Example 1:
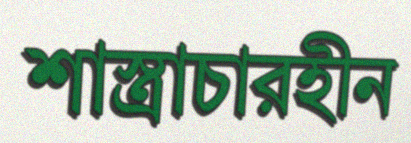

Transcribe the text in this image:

শাস্ত্রাচারহীন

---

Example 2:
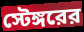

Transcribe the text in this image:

স্টেঙ্গরের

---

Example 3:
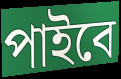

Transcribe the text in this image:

পাইবে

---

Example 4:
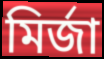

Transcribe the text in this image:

মির্জা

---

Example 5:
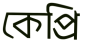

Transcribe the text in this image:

কেপ্রি